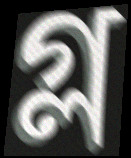
গ্ল